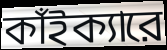
কাঁইক্যারে